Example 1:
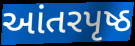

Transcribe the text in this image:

આંતરપૃષ્ઠ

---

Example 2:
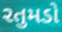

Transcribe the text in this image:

રતુમડો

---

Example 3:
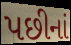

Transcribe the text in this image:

પછીનાં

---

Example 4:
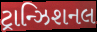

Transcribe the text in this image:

ટ્રાન્ઝિશનલ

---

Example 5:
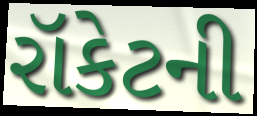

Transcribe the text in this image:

રૉકેટની